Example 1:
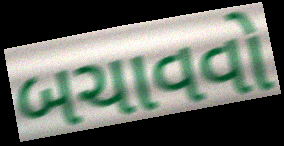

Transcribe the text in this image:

બચાવવો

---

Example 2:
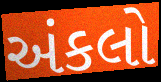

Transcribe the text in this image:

અંકલો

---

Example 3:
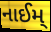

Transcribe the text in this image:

નાઈમ્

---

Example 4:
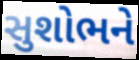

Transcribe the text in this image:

સુશોભને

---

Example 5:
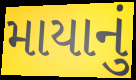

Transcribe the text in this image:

માયાનું